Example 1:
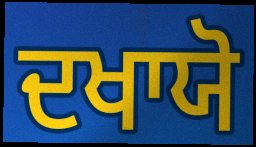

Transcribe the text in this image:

ਦਖਾਯੋ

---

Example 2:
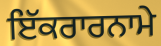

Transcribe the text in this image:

ਇੱਕਰਾਰਨਾਮੇ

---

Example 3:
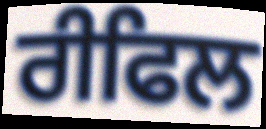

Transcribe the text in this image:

ਰੀਫਿਲ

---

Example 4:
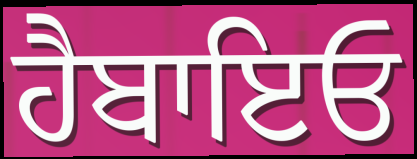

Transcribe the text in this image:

ਹੈਬਾਇਓ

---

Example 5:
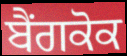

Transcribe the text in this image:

ਬੈਂਗਕੋਕ